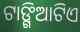
ଟାଙ୍ଗିଆଟିଏ